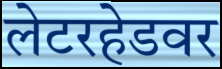
लेटरहेडवर